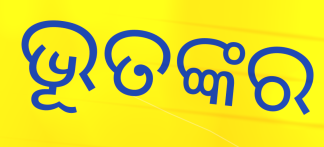
ଭୂତଙ୍କର